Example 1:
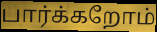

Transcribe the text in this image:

பார்க்கறோம்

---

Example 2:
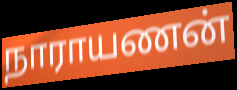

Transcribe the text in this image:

நாராயணன்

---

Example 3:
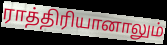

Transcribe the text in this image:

ராத்திரியானாலும்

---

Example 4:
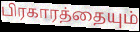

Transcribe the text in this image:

பிரகாரத்தையும்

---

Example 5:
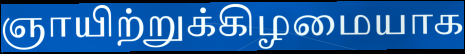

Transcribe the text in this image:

ஞாயிற்றுக்கிழமையாக